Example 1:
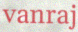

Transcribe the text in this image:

vanraj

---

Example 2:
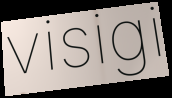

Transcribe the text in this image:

visigi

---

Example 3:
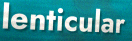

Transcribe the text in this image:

lenticular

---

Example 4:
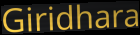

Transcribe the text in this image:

Giridhara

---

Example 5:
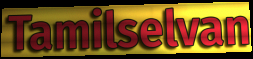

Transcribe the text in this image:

Tamilselvan